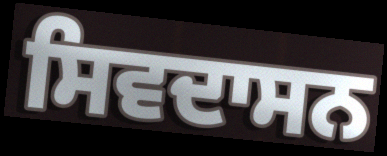
ਸਿਵਦਾਸਨ